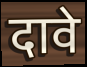
दावे